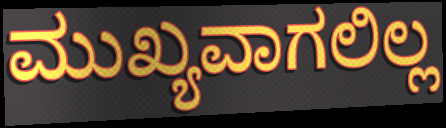
ಮುಖ್ಯವಾಗಲಿಲ್ಲ